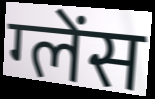
ग्लेंस